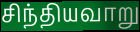
சிந்தியவாறு